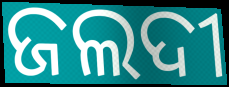
ଜଲଦୀ